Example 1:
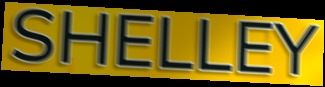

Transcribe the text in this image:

SHELLEY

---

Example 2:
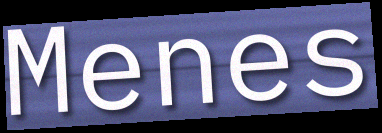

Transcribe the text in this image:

Menes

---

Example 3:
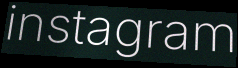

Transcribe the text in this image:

instagram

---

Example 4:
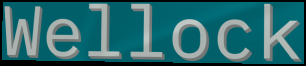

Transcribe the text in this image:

Wellock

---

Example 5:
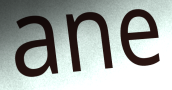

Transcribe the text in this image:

ane